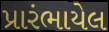
પ્રારંભાયેલ